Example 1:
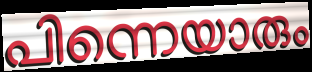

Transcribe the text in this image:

പിന്നെയാരും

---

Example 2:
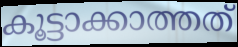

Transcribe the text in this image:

കൂട്ടാക്കാത്തത്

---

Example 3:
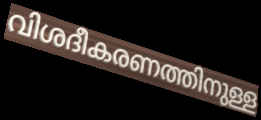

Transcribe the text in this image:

വിശദീകരണത്തിനുള്ള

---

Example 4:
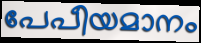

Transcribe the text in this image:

പേപീയമാനം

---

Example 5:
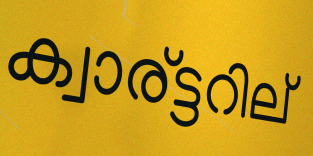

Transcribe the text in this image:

ക്വാര്ട്ടറില്